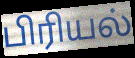
பிரியல்